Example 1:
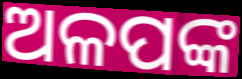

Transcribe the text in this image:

ଅଳପଙ୍କ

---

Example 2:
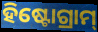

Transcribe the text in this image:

ହିଷ୍ଟୋଗ୍ରାମ୍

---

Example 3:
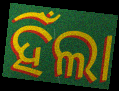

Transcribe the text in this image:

ହିଁଲା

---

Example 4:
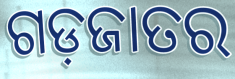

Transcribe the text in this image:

ଗଡ଼ଜାତର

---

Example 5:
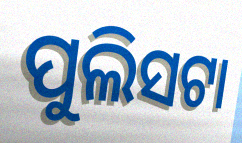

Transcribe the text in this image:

ପୁଲିସଟା